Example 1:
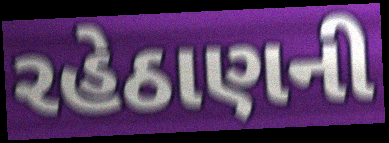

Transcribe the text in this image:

રહેઠાણની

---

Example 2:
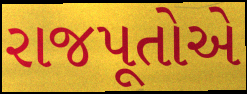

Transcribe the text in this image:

રાજપૂતોએ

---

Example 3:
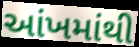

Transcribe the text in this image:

આંખમાંથી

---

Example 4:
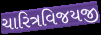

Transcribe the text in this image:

ચારિત્રવિજયજી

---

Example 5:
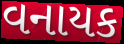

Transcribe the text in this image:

વનાયક